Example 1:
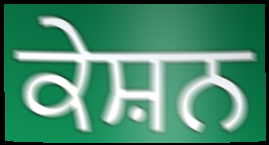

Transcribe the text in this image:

ਕੇਸ਼ਨ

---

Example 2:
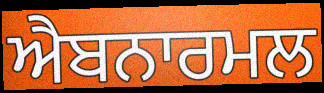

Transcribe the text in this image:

ਐਬਨਾਰਮਲ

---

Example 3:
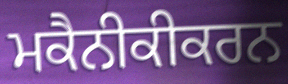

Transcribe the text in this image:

ਮਕੈਨੀਕੀਕਰਨ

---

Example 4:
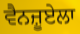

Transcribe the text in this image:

ਵੈਨਜ਼ੂਏਲਾ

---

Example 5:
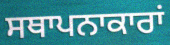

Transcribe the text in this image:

ਸਥਾਪਨਾਕਾਰਾਂ